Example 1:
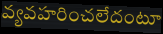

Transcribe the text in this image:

వ్యవహరించలేదంటూ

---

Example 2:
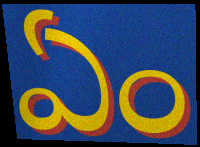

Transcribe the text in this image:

ఏం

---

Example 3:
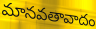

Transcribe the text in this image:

మానవతావాదం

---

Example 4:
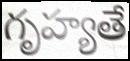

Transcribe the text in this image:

గృహ్యతే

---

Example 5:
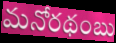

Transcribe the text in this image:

మనోరథంబు